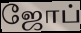
ஜோப்